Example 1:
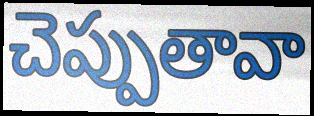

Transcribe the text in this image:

చెప్పుతావా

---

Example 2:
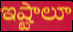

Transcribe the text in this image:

ఇష్టాలూ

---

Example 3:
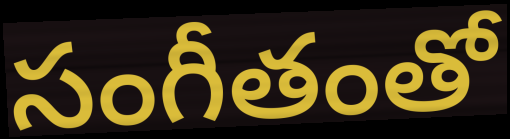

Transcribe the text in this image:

సంగీతంతో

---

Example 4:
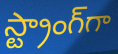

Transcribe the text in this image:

స్ట్రాంగ్‌గా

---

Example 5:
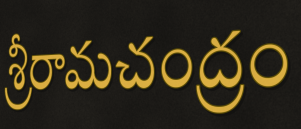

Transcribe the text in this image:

శ్రీరామచంద్రం